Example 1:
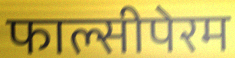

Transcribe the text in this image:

फाल्सीपेरम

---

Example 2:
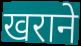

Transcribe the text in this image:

खराने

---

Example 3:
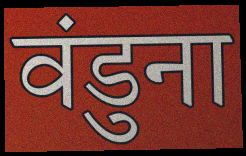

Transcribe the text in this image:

वंडुना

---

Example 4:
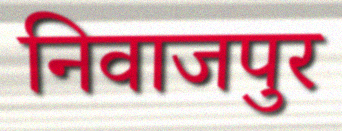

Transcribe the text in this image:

निवाजपुर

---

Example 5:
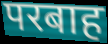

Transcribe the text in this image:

परबाह